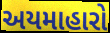
અયમાહારો